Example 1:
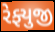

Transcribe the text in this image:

રેફ્યુજી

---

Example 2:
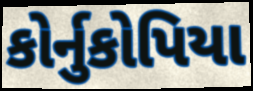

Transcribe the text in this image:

કોર્નુકોપિયા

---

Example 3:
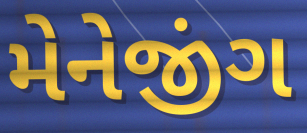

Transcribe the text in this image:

મેનેજીંગ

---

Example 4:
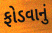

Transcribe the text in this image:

ફોડવાનું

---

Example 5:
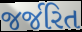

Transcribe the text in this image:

જર્જરિત